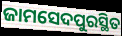
ଜାମସେଦପୁରସ୍ଥିତ